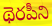
థెరపీని